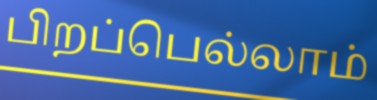
பிறப்பெல்லாம்